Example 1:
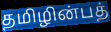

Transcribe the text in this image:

தமிழின்பத்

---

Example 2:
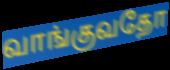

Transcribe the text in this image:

வாங்குவதோ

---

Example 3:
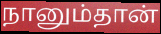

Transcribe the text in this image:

நானும்தான்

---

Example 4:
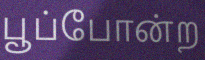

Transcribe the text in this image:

பூப்போன்ற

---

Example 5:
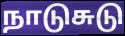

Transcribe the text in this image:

நாடுசுடு